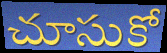
చూసుకో